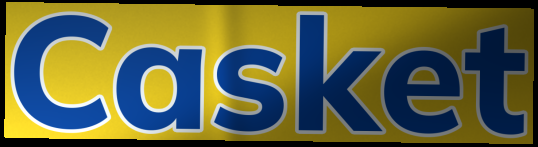
Casket